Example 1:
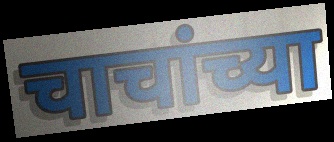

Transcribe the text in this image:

चाचांच्या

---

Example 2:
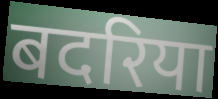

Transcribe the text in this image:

बदरिया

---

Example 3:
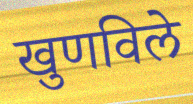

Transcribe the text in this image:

खुणविले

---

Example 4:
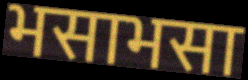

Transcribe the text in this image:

भसाभसा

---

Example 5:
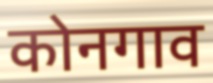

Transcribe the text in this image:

कोनगाव